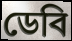
ডেবি